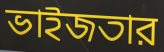
ভাইজতার